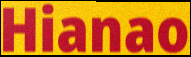
Hianao